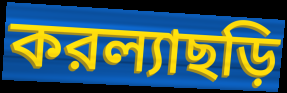
করল্যাছড়ি